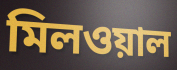
মিলওয়াল